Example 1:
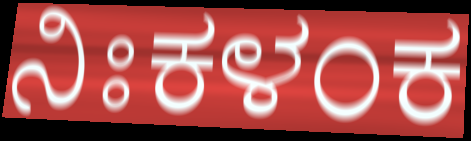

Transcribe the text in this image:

ನಿಃಕಳಂಕ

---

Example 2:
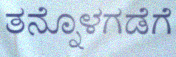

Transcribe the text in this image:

ತನ್ನೊಳಗಡೆಗೆ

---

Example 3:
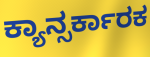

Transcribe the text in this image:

ಕ್ಯಾನ್ಸರ್ಕಾರಕ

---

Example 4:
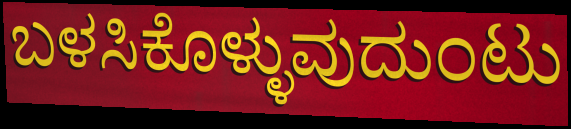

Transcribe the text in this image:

ಬಳಸಿಕೊಳ್ಳುವುದುಂಟು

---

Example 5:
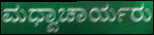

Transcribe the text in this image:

ಮಧ್ವಾಚಾರ್ಯರು